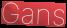
Gans